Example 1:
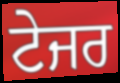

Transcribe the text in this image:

ਟੇਜਰ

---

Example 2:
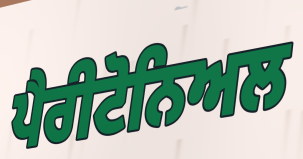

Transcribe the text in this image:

ਪੈਰੀਟੋਨਿਅਲ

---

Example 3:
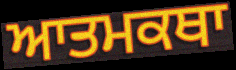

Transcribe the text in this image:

ਆਤਮਕਥਾ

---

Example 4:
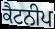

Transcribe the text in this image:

ਕੈਟਨੀਪ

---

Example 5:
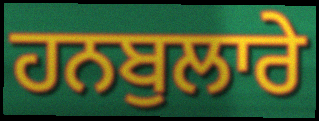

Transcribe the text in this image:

ਹਨਬੁਲਾਰੇ